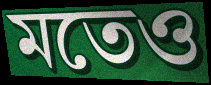
মতেও